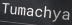
Tumachya